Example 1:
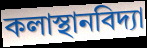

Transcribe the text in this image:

কলাস্থানবিদ্যা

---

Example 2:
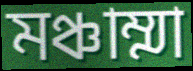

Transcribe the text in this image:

মঞ্চাম্মা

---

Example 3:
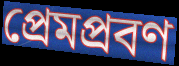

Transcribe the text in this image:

প্রেমপ্রবণ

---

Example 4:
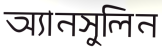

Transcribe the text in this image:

অ্যানসুলিন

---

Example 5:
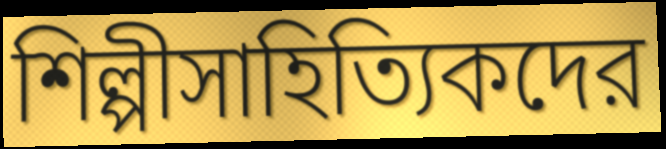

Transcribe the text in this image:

শিল্পীসাহিত্যিকদের